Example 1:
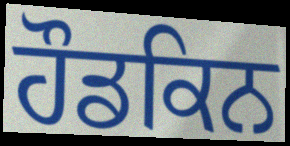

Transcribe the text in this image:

ਹੌਡਕਿਨ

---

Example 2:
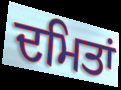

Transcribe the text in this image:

ਦਮਿਤਾਂ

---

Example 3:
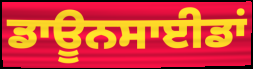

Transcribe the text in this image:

ਡਾਊਨਸਾਈਡਾਂ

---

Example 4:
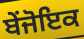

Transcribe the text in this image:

ਬੇਂਜੋਇਕ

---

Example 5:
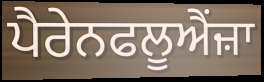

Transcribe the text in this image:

ਪੈਰੇਨਫਲੂਐਂਜ਼ਾ